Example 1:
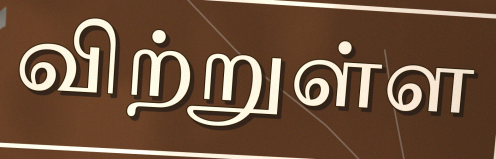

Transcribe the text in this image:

விற்றுள்ள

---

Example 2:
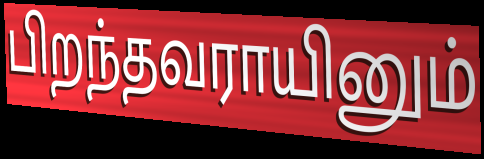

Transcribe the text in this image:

பிறந்தவராயினும்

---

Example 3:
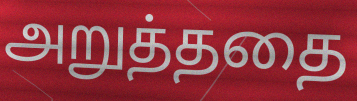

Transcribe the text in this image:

அறுத்ததை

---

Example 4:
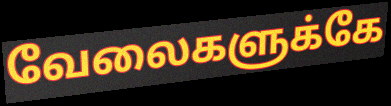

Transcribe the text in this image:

வேலைகளுக்கே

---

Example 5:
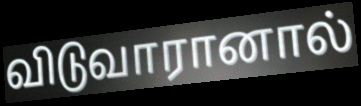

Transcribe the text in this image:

விடுவாரானால்